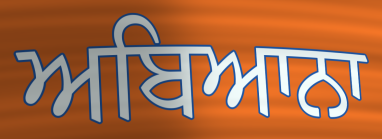
ਅਬਿਆਨਾ